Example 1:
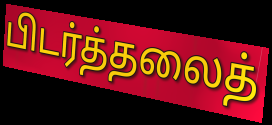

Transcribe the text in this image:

பிடர்த்தலைத்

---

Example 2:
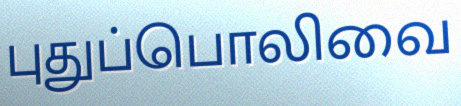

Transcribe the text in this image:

புதுப்பொலிவை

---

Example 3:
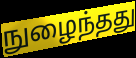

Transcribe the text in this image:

நுழைந்தது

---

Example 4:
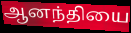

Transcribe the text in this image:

ஆனந்தியை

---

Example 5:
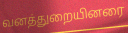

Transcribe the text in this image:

வனத்துறையினரை